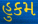
હુકમ